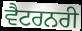
ਵੈਟਰਨਰੀ